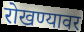
रोखण्यावर